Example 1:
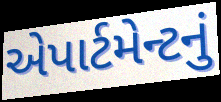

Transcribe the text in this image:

એપાર્ટમેન્ટનું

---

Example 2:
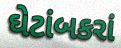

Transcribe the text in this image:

ઘેટાંબકરાં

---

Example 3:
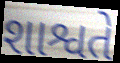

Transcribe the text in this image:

શાશ્વતે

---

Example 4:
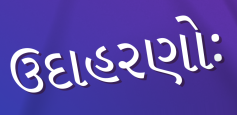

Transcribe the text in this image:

ઉદાહરણોઃ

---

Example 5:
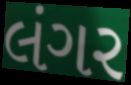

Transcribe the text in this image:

લંગર